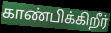
காண்பிக்கிறீர்